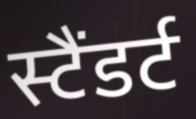
स्टैंडर्ट